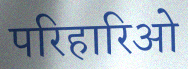
परिहारिओ